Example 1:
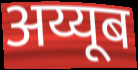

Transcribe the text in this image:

अय्यूब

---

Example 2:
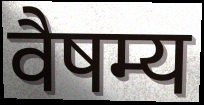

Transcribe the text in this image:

वैषम्‍य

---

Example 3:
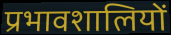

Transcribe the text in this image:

प्रभावशालियों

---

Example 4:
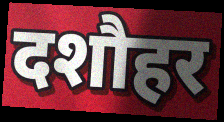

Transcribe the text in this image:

दशौहर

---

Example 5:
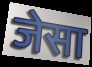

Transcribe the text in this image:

जेसा